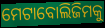
ମେଟାବୋଲିଜିମକୁ